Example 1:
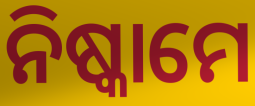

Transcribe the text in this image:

ନିଷ୍କାମେ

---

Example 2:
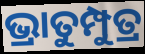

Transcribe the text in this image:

ଭ୍ରାତୁମ୍ପୁତ୍ର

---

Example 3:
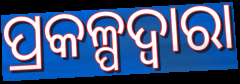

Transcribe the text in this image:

ପ୍ରକଳ୍ପଦ୍ୱାରା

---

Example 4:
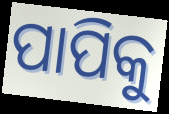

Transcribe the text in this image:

ପାପିକୁ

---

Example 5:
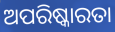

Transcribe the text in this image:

ଅପରିଷ୍କାରତା